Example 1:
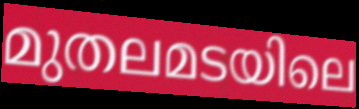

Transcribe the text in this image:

മുതലമടയിലെ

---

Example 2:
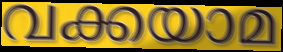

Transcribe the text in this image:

വക്കയാമ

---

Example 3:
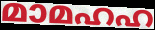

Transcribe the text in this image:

മാമഹഹ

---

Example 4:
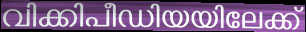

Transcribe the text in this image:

വിക്കിപീഡിയയിലേക്ക്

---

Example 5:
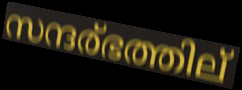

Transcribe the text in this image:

സന്ദര്ഭത്തില്